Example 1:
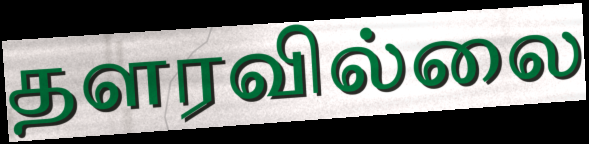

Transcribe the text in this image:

தளரவில்லை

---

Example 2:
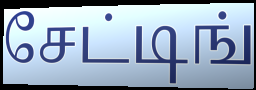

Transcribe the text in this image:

சேட்டிங்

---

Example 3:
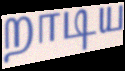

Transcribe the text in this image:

றாடிய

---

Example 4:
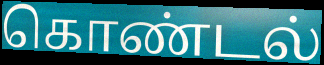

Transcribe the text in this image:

கொண்டல்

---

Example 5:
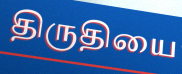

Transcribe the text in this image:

திருதியை